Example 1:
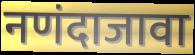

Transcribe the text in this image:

नणंदाजावा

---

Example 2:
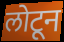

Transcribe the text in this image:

लोटून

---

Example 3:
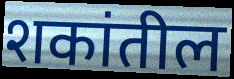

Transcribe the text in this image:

शकांतील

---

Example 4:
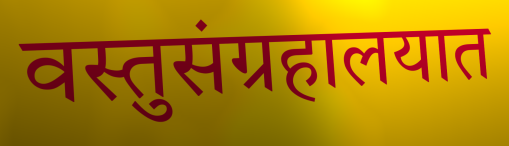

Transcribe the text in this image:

वस्तुसंग्रहालयात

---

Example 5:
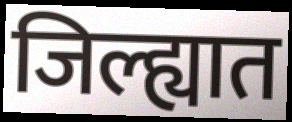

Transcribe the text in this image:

जिल्ह्यात